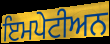
ਇਮਪੇਟੀਅਨ